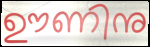
ഊണിനു